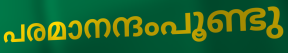
പരമാനന്ദംപൂണ്ടു